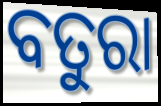
ବତୁରା